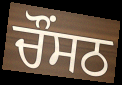
ਚੌਂਸਠ